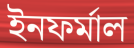
ইনফর্মাল